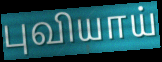
புவியாய்